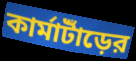
কার্মাটাঁড়ের